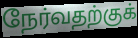
நேர்வதற்குக்